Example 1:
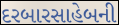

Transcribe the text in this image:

દરબારસાહેબની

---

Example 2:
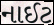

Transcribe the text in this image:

નાઈટ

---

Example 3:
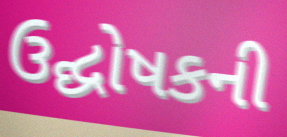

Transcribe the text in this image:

ઉદ્ઘોષકની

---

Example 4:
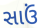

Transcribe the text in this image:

સાઉં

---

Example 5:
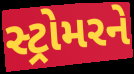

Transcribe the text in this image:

સ્ટ્રોમરને